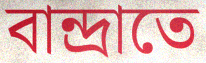
বান্দ্রাতে